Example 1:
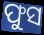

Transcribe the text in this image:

ଫୁସ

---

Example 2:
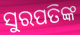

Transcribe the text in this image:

ସୁରପତିଙ୍କ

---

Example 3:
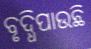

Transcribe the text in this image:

ବୃଦ୍ଧିପାଉଛି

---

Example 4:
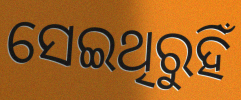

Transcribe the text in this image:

ସେଇଥିରୁହିଁ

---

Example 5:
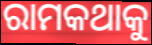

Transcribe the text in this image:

ରାମକଥାକୁ